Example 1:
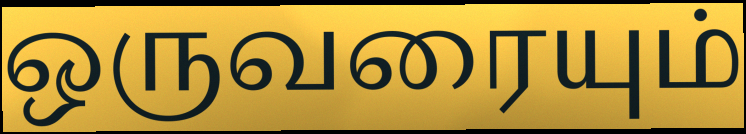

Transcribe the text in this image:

ஒருவரையும்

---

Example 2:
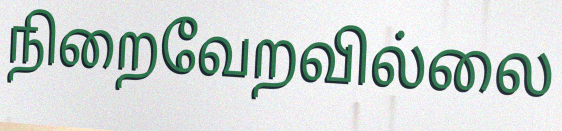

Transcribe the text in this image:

நிறைவேறவில்லை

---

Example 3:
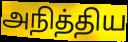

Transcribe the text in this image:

அநித்திய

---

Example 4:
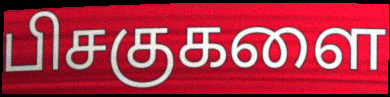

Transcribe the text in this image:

பிசகுகளை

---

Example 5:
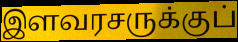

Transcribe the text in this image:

இளவரசருக்குப்